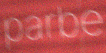
parbe